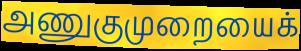
அணுகுமுறையைக்